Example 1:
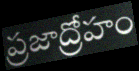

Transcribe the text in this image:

ప్రజాద్రోహం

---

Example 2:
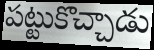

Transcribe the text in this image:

పట్టుకొచ్చాడు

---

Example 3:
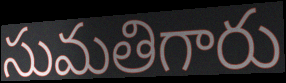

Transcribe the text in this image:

సుమతిగారు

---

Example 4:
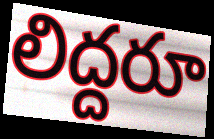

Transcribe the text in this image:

లిద్దరూ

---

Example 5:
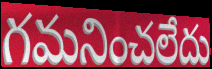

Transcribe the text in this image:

గమనించలేదు